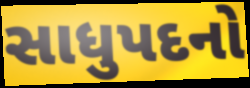
સાધુપદનો